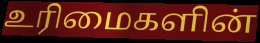
உரிமைகளின்